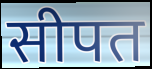
सीपत